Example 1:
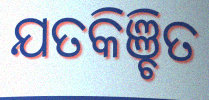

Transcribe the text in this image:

ଯତକିଞ୍ଚିତ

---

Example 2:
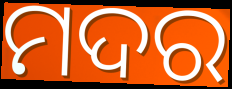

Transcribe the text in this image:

ମଦର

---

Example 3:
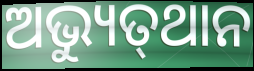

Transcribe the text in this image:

ଅଭ୍ୟୁତ୍‌ଥାନ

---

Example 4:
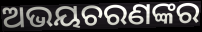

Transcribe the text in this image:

ଅଭୟଚରଣଙ୍କର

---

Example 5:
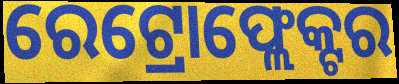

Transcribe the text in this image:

ରେଟ୍ରୋଫ୍ଲେକ୍ଟର